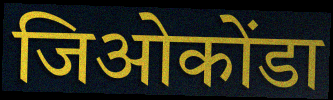
जिओकोंडा